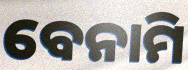
ବେନାମି